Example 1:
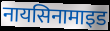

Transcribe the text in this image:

नायसिनामाइड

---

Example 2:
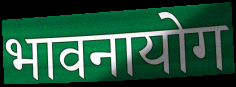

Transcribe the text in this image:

भावनायोग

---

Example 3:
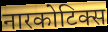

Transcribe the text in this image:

नारकोटिक्स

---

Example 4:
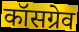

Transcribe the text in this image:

कॉसग्रेव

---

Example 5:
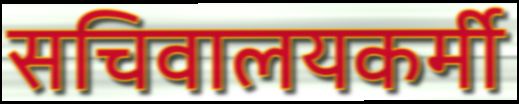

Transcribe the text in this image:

सचिवालयकर्मी